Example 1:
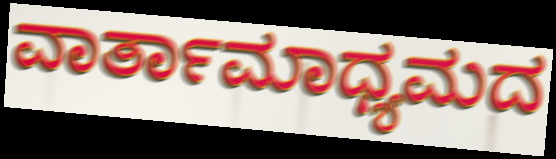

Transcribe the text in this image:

ವಾರ್ತಾಮಾಧ್ಯಮದ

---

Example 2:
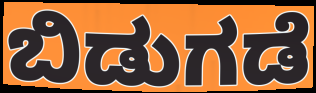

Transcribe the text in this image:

ಬಿಡುಗಡೆ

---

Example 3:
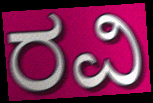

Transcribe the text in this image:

ರವಿ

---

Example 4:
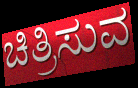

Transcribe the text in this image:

ಚಿತ್ರಿಸುವ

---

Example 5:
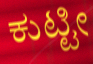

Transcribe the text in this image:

ಕುಟ್ಟೀ